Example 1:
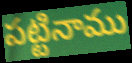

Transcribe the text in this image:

పట్టినాము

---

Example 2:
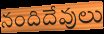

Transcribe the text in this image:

నందిదేవులు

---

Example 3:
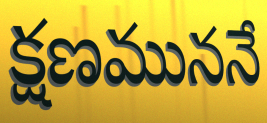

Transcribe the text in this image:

క్షణముననే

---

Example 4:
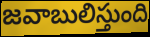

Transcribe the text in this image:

జవాబులిస్తుంది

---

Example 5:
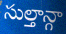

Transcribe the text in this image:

సుల్తాన్గా